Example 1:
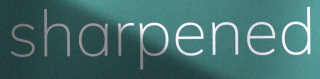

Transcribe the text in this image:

sharpened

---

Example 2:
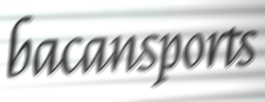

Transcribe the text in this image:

bacansports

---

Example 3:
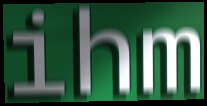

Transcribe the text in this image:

ihm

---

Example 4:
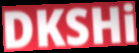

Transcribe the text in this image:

DKSHi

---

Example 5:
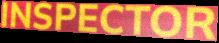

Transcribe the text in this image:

INSPECTOR